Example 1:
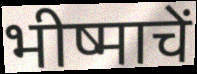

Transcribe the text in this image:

भीष्माचें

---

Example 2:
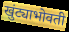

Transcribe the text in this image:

खुंट्याभोवती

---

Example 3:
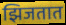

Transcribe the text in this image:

झिजतात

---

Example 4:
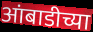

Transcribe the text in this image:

आंबाडीच्या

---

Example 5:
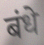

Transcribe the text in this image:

बंधे